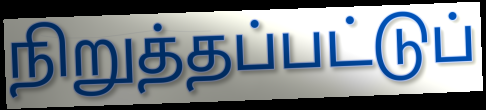
நிறுத்தப்பட்டுப்